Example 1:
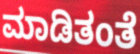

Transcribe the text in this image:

ಮಾಡಿತಂತೆ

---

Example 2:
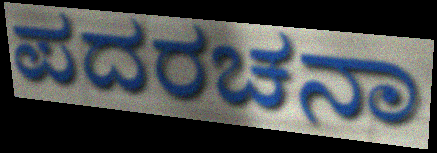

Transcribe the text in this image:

ಪದರಚನಾ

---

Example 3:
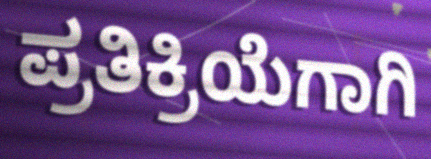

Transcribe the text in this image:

ಪ್ರತಿಕ್ರಿಯೆಗಾಗಿ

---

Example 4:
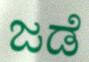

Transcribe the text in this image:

ಜಡೆ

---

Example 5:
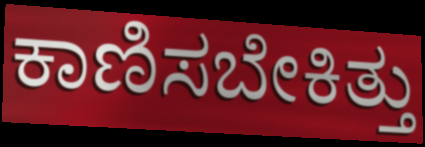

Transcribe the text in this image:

ಕಾಣಿಸಬೇಕಿತ್ತು